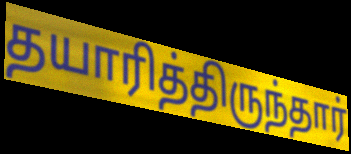
தயாரித்திருந்தார்